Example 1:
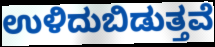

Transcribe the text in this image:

ಉಳಿದುಬಿಡುತ್ತವೆ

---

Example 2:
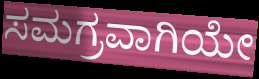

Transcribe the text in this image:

ಸಮಗ್ರವಾಗಿಯೇ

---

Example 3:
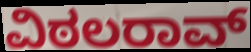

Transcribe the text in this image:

ವಿಠಲರಾವ್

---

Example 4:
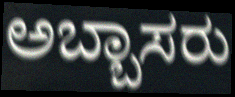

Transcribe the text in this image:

ಅಬ್ಬಾಸರು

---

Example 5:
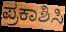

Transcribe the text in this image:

ಪ್ರಕಾಶಿಸಿ